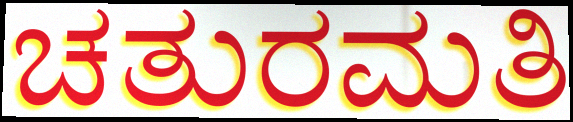
ಚತುರಮತಿ